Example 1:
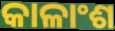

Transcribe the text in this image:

କାଳାଂଶ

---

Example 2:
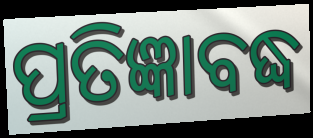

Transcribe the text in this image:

ପ୍ରତିଜ୍ଞାବଦ୍ଧ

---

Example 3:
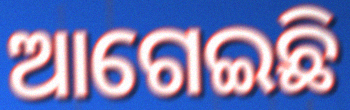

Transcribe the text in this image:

ଆଗେଇଛି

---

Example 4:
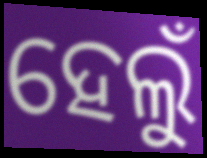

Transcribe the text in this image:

ହେଲୁଁ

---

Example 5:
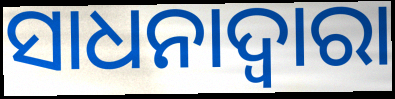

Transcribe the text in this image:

ସାଧନାଦ୍ଵାରା